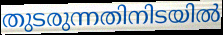
തുടരുന്നതിനിടയിൽ